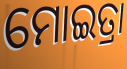
ମୋଇତ୍ରା